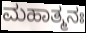
ಮಹಾತ್ಮನಃ